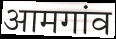
आमगांव